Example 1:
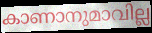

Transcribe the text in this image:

കാണാനുമാവില്ല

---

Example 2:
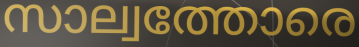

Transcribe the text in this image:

സാല്വത്തോരെ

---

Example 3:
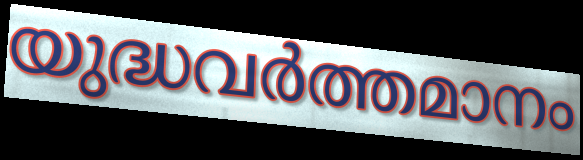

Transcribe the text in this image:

യുദ്ധവർത്തമാനം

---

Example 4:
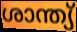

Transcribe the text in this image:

ശാന്ത്യ്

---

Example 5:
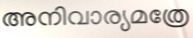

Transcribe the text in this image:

അനിവാര്യമത്രേ